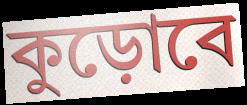
কুড়োবে